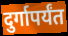
दुर्गापर्यंत